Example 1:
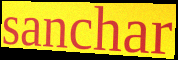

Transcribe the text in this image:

sanchar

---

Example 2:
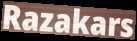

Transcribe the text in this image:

Razakars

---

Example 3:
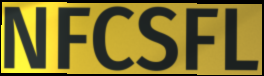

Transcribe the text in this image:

NFCSFL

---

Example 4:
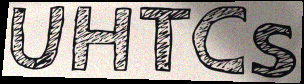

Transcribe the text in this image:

UHTCs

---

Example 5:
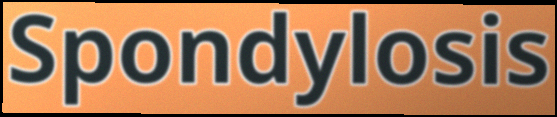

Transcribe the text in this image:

Spondylosis